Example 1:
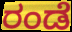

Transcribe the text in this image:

ರಂಡೆ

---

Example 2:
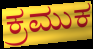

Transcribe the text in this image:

ಕ್ರಮುಕ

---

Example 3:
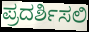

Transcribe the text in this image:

ಪ್ರದರ್ಶಿಸಲಿ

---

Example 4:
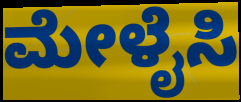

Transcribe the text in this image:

ಮೇಳೈಸಿ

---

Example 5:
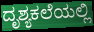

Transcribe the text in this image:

ದೃಶ್ಯಕಲೆಯಲ್ಲಿ